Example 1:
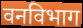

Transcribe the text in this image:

वनविभाग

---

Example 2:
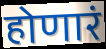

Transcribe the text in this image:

होणारं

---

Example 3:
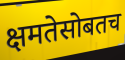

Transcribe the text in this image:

क्षमतेसोबतच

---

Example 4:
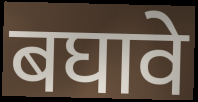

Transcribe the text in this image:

बघावे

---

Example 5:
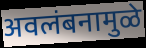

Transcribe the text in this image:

अवलंबनामुळे